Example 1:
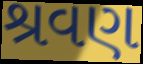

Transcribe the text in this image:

શ્રવણ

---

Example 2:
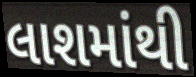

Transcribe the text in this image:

લાશમાંથી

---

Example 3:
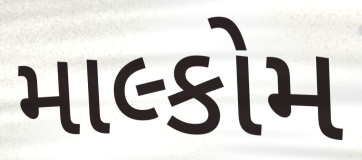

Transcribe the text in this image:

માલ્કોમ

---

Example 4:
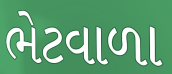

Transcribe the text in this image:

ભેટવાળા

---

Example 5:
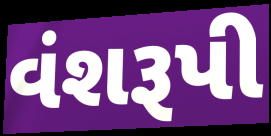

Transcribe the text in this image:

વંશરૂપી